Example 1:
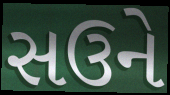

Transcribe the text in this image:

સઉને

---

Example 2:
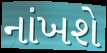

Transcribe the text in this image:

નાંખશે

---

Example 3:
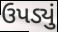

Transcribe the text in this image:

ઉપડ્યું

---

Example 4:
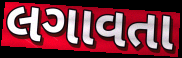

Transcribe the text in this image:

લગાવતા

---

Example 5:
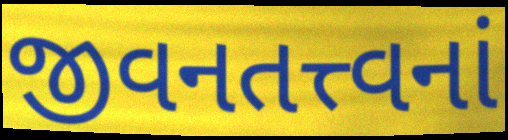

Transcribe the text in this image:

જીવનતત્ત્વનાં